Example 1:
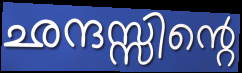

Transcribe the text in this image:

ഛന്ദസ്സിന്റെ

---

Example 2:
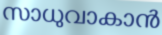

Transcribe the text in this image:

സാധുവാകാൻ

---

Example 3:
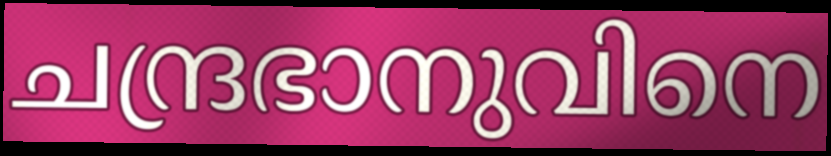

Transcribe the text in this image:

ചന്ദ്രഭാനുവിനെ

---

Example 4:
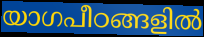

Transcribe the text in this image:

യാഗപീഠങ്ങളിൽ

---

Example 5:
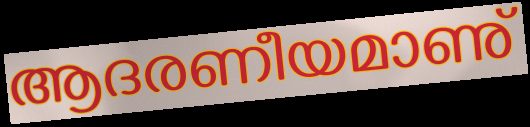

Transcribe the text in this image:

ആദരണീയമാണു്